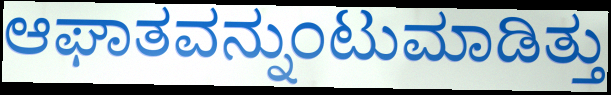
ಆಘಾತವನ್ನುಂಟುಮಾಡಿತ್ತು